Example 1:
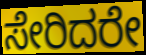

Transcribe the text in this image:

ಸೇರಿದರೇ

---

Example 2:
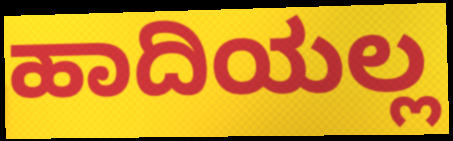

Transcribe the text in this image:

ಹಾದಿಯಲ್ಲ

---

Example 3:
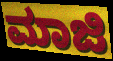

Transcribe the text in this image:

ಮಾಜಿ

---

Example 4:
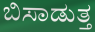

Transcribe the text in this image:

ಬಿಸಾಡುತ್ತ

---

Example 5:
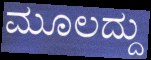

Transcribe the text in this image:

ಮೂಲದ್ದು